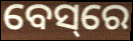
ବେସ୍‌ରେ